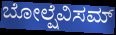
ಬೋಲ್ಷೆವಿಸಮ್